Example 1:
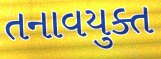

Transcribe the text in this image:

તનાવયુક્ત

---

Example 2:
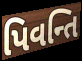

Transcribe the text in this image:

પિવન્તિ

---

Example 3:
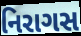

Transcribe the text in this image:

નિરાગસ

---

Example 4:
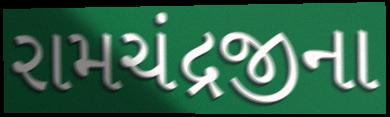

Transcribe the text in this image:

રામચંદ્રજીના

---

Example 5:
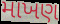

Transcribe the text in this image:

માખણ